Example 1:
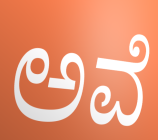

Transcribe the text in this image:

ಅವೆ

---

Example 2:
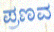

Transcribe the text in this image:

ಪ್ರಣವ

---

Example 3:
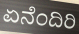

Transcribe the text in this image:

ಏನೆಂದಿರಿ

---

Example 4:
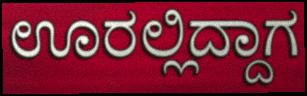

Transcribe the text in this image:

ಊರಲ್ಲಿದ್ದಾಗ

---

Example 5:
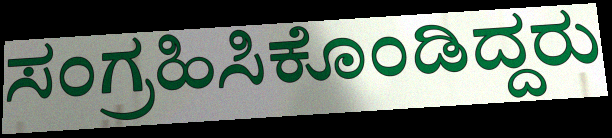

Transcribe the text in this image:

ಸಂಗ್ರಹಿಸಿಕೊಂಡಿದ್ದರು